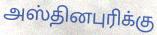
அஸ்தினபுரிக்கு